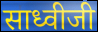
साध्वीजी